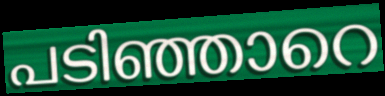
പടിഞ്ഞാറെ